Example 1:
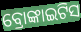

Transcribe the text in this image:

ବ୍ରୋଙ୍କାଇଟିସ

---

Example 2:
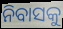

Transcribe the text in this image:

ନିବାସକୁ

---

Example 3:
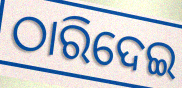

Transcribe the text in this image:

ଠାରିଦେଇ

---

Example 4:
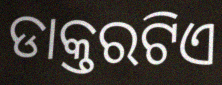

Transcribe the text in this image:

ଡାକ୍ତରଟିଏ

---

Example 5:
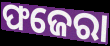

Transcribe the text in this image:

ଫଜେରା